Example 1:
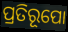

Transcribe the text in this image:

ପ୍ରତିରୂପୋ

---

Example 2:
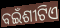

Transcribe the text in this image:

ବଇଁଶୀଟିଏ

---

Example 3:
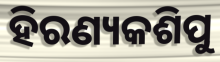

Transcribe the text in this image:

ହିରଣ୍ୟକଶିପୁ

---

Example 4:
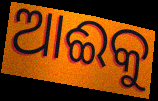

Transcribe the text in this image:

ଆଈକୁ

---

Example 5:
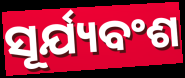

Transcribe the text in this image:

ସୂର୍ଯ୍ୟବଂଶ